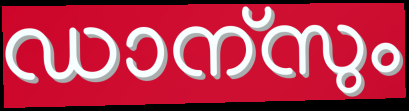
ഡാന്സും